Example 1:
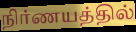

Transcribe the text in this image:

நிர்ணயத்தில்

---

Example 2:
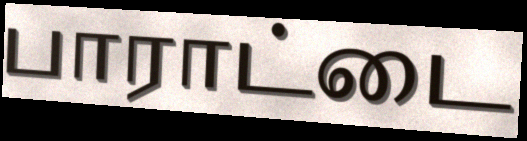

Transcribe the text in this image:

பாராட்டை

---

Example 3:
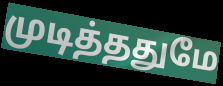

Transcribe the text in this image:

முடித்ததுமே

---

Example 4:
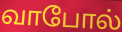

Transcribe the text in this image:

வாபோல்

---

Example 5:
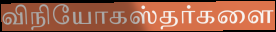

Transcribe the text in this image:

விநியோகஸ்தர்களை